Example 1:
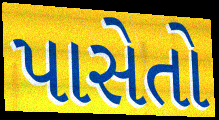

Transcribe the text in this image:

પાસેતો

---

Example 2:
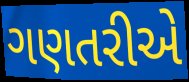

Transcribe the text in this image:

ગણતરીએ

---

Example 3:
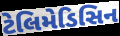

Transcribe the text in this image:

ટેલિમેડિસિન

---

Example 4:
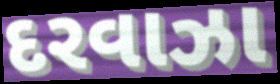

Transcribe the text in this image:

દરવાઝા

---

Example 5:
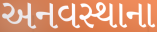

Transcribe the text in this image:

અનવસ્થાના